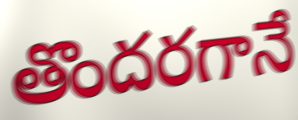
తొందరగానే